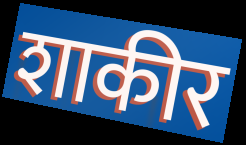
शाकीर